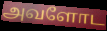
அவளோட